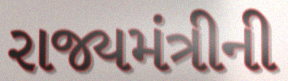
રાજ્યમંત્રીની